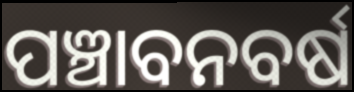
ପଞ୍ଚାବନବର୍ଷ